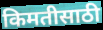
किमतीसाठी